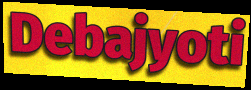
Debajyoti